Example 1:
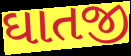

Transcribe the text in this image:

ઘાતજી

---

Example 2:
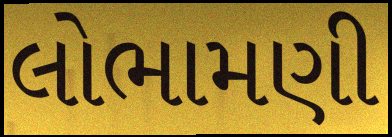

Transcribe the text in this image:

લોભામણી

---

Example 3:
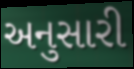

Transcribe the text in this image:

અનુસારી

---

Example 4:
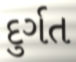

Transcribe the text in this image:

દુર્ગત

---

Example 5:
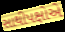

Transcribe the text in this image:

સાથીપક્ષોએ